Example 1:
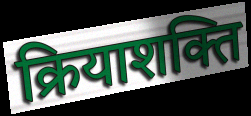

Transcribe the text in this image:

क्रियाशक्ति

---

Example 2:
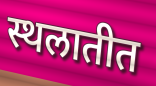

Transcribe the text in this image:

स्थलातीत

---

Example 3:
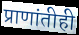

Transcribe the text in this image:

प्राणांतीही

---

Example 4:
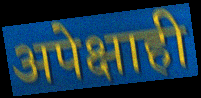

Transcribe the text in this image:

अपेक्षाही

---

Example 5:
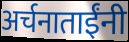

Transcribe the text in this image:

अर्चनाताईंनी